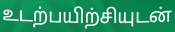
உடற்பயிற்சியுடன்